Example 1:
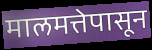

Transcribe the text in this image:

मालमत्तेपासून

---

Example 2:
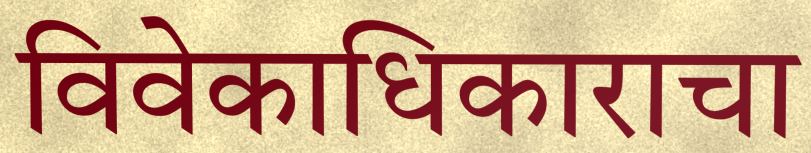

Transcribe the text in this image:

विवेकाधिकाराचा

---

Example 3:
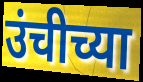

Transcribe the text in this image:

उंचीच्या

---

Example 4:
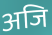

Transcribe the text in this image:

अजि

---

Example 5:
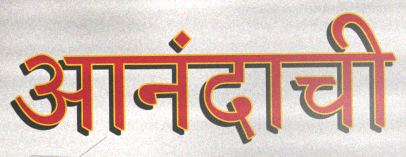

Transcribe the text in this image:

आनंदाची